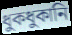
ধুকধুকানি